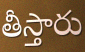
తీస్తారు